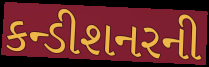
કન્ડીશનરની